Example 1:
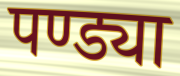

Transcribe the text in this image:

पण्ड्या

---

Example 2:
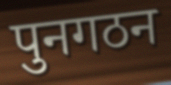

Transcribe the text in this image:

पुनगठन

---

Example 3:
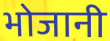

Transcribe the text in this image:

भोजानी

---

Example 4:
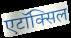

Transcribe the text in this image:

एटॉक्सिल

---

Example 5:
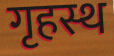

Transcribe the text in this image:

गृहस्थ